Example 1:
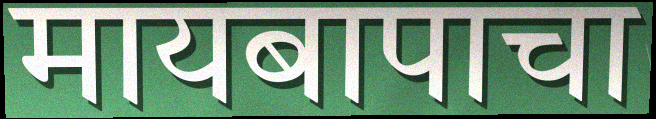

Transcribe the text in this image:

मायबापाचा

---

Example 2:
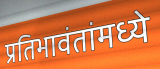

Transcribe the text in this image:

प्रतिभावंतांमध्ये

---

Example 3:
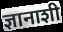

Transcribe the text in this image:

ज्ञानाशी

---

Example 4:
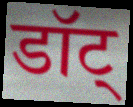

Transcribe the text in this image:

डॉट्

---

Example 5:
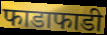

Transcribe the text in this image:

फाडाफाडी